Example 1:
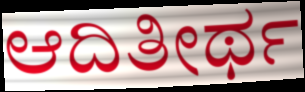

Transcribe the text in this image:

ಆದಿತೀರ್ಥ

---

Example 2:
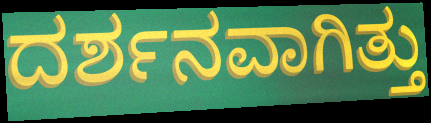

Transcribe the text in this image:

ದರ್ಶನವಾಗಿತ್ತು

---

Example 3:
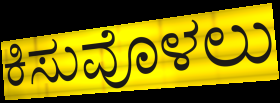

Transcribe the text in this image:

ಕಿಸುವೊಳಲು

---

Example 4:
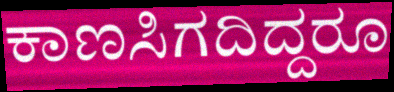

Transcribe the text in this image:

ಕಾಣಸಿಗದಿದ್ದರೂ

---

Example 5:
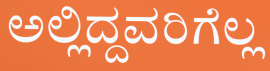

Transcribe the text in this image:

ಅಲ್ಲಿದ್ದವರಿಗೆಲ್ಲ